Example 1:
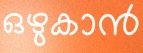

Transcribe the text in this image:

ഒഴുകാൻ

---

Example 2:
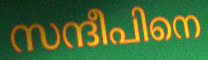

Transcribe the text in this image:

സന്ദീപിനെ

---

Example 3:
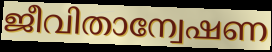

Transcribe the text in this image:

ജീവിതാന്വേഷണ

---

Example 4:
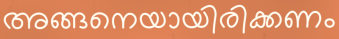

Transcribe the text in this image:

അങ്ങനെയായിരിക്കണം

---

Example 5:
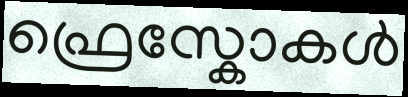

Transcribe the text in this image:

ഫ്രെസ്കോകൾ